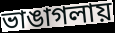
ভাঙাগলায়